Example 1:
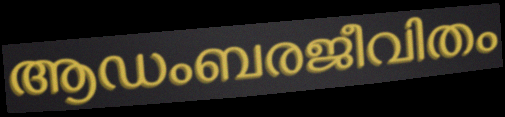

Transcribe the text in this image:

ആഡംബരജീവിതം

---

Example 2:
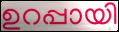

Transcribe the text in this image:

ഉറപ്പായി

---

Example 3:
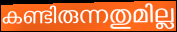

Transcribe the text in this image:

കണ്ടിരുന്നതുമില്ല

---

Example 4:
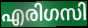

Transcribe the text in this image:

എരിഗസി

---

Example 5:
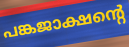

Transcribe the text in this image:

പങ്കജാക്ഷന്റെ